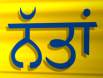
ਨੱਤਾਂ